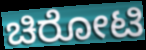
ಚಿರೋಟಿ